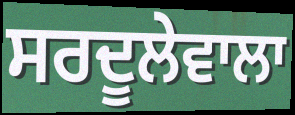
ਸਰਦੂਲੇਵਾਲਾ